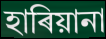
হাৰিয়ানা